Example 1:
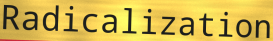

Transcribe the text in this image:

Radicalization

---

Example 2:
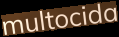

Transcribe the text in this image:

multocida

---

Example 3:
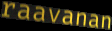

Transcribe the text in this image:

raavanan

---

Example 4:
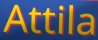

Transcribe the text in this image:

Attila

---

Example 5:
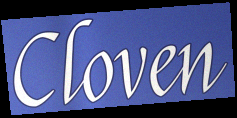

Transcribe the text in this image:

Cloven